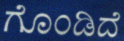
ಗೊಂಡಿದೆ